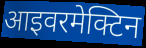
आइवरमेक्टिन